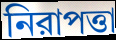
নিরাপত্তা